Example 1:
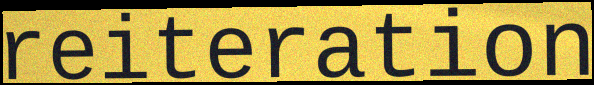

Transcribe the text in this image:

reiteration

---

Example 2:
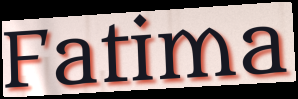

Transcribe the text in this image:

Fatima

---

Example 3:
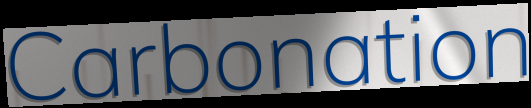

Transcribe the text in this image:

Carbonation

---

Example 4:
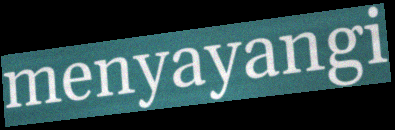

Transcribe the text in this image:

menyayangi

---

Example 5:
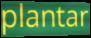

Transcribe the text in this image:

plantar